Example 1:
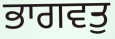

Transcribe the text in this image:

ਭਾਗਵਤੁ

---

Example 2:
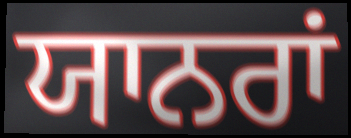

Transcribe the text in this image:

ਯਾਨਰਾਂ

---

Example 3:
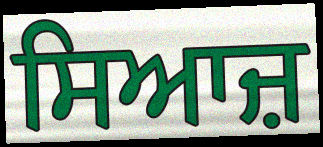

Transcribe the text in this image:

ਸਿਆਜ਼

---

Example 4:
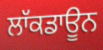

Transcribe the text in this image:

ਲਾੱਕਡਾਊਨ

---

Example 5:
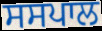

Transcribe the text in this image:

ਸਸਪਾਲ